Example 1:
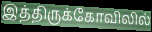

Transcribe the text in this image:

இத்திருக்கோவிலில்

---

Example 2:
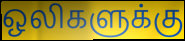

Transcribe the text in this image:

ஒலிகளுக்கு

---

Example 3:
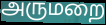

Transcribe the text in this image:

அருமறை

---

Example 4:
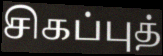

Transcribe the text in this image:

சிகப்புத்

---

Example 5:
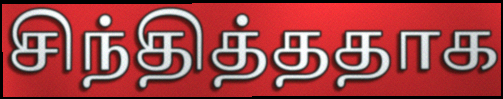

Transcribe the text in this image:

சிந்தித்ததாக